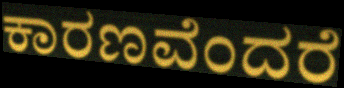
ಕಾರಣವೆಂದರೆ